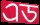
এড